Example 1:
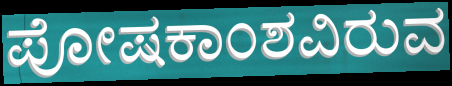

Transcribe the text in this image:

ಪೋಷಕಾಂಶವಿರುವ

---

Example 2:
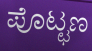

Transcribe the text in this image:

ಪೊಟ್ಟಣ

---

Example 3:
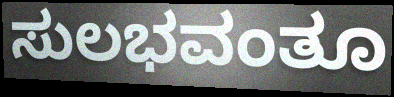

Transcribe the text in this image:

ಸುಲಭವಂತೂ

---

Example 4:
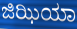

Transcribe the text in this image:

ಜಿಝಿಯಾ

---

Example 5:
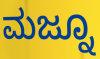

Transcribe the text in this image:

ಮಜ್ನೂ